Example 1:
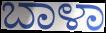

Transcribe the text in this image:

ಬಾಳಾ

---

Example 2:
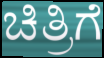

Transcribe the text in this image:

ಚಿತ್ರಿಗೆ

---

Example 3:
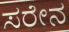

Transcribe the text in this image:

ಸರೇನ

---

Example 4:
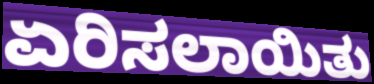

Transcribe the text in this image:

ಏರಿಸಲಾಯಿತು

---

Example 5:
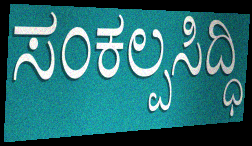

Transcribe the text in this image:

ಸಂಕಲ್ಪಸಿದ್ಧಿ